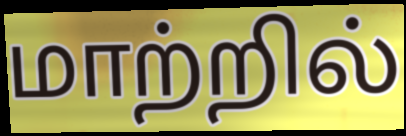
மாற்றில்